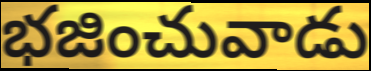
భజించువాడు